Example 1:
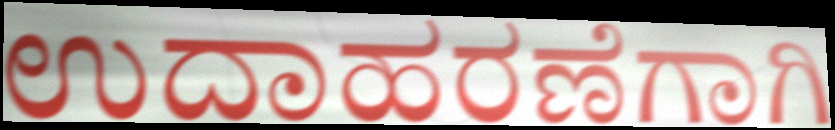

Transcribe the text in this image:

ಉದಾಹರಣೆಗಾಗಿ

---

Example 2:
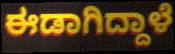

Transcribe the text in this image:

ಈಡಾಗಿದ್ದಾಳೆ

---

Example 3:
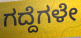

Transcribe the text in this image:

ಗದ್ದೆಗಳೇ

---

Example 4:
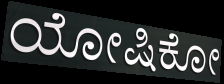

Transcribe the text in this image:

ಯೋಷಿಕೋ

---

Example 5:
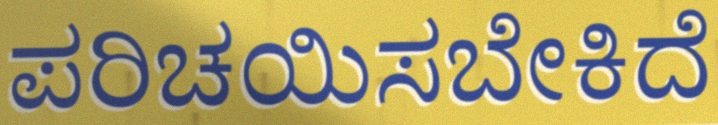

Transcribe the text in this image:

ಪರಿಚಯಿಸಬೇಕಿದೆ